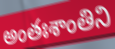
అంతఃశాంతిని